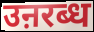
उऩरब्ध